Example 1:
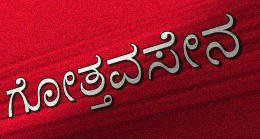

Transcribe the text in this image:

ಗೋತ್ತವಸೇನ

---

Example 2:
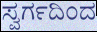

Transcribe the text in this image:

ಸ್ವರ್ಗದಿಂದ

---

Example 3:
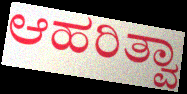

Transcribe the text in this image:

ಆಹರಿತ್ವಾ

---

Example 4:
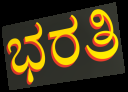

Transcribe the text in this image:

ಭರತಿ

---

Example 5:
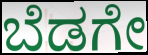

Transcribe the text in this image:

ಬೆಡಗೇ